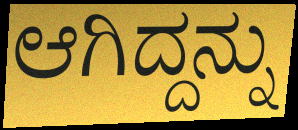
ಆಗಿದ್ದನ್ನು